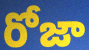
రోజా